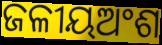
ଜଳୀୟଅଂଶ